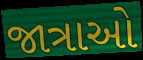
જાત્રાઓ